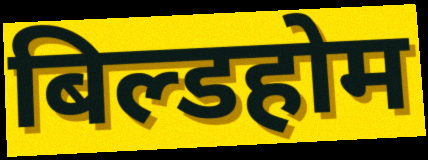
बिल्डहोम